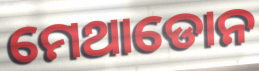
ମେଥାଡୋନ